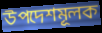
উপদেশমূলক